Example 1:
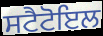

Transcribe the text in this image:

ਸਟੈਟੋਇਲ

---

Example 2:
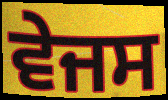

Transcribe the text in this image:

ਵੇਜਸ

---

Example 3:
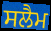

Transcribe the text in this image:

ਸਲੈਮ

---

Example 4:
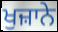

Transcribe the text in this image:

ਖੁਜ਼ਾਨੇ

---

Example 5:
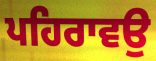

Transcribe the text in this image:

ਪਹਿਰਾਵਉ